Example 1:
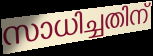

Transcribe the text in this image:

സാധിച്ചതിന്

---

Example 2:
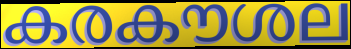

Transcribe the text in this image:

കരകൗശല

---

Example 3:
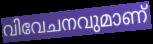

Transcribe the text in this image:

വിവേചനവുമാണ്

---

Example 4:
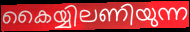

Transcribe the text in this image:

കൈയ്യിലണിയുന്ന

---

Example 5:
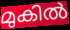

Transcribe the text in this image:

മുകിൽ